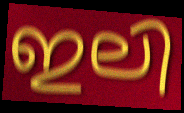
ഇലി